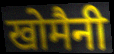
खोमैनी